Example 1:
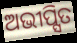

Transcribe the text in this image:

ଅଭୀପ୍ସିତ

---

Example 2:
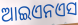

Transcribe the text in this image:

ଆଇଏନଏସ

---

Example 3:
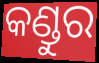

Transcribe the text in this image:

କଣ୍ଡୁର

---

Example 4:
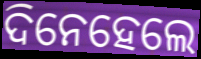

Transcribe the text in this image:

ଦିନେହେଲେ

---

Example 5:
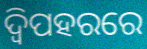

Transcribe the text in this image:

ଦ୍ୱିପହରରେ